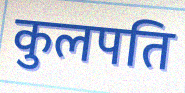
कुलपति